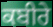
ਕਬੀਰੇ